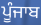
ਪੂੰਜਾਬ